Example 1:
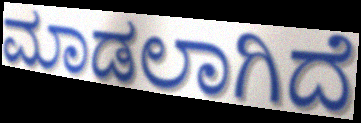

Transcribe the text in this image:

ಮಾಡಲಾಗಿದೆ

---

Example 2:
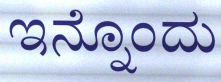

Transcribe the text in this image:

ಇನ್ನೊಂದು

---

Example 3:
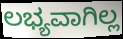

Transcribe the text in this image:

ಲಭ್ಯವಾಗಿಲ್ಲ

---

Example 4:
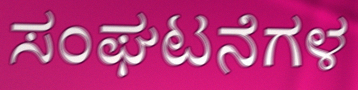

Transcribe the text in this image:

ಸಂಘಟನೆಗಳ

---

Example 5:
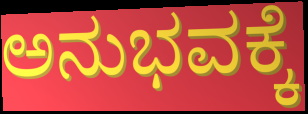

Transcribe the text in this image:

ಅನುಭವಕ್ಕೆ